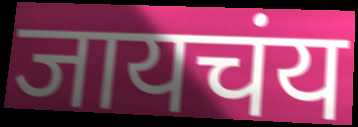
जायचंय